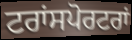
ਟਰਾਂਸਪੋਰਟਰਾਂ